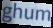
ghum